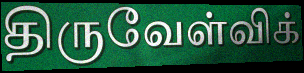
திருவேள்விக்